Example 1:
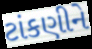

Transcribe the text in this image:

ટાંકણીને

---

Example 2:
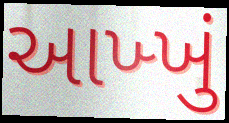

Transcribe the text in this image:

આખ્ખું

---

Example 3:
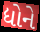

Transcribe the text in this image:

દ્યોને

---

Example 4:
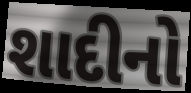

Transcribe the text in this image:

શાદીનો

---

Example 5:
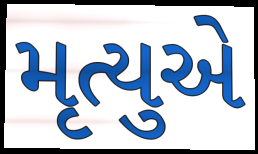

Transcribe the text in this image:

મૃત્યુએ